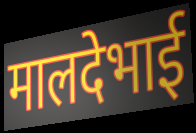
मालदेभाई